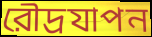
রৌদ্রযাপন